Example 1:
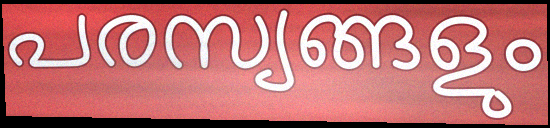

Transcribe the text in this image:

പരസ്യങ്ങളും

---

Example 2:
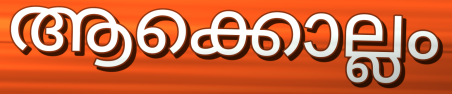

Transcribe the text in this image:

ആക്കൊല്ലം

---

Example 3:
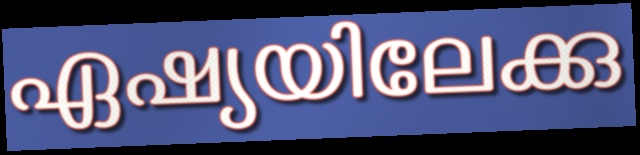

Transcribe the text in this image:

ഏഷ്യയിലേക്കു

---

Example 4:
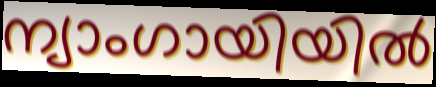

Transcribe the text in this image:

ന്യാംഗായിയിൽ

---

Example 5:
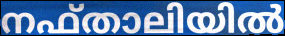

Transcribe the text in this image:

നഫ്താലിയിൽ